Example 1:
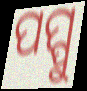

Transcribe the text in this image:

ପପ୍ପୁ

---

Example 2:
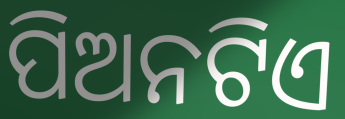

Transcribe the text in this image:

ପିଅନଟିଏ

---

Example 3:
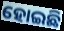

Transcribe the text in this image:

ହୋଇଛି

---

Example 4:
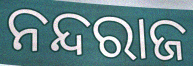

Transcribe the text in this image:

ନନ୍ଦରାଜ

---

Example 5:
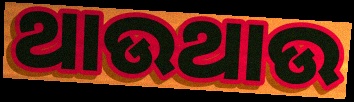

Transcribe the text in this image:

ଥାଉଥାଉ